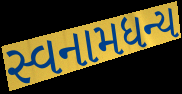
સ્વનામધન્ય